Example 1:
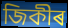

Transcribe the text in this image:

জিকীৰ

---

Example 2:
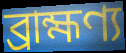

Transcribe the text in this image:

ব্ৰাহ্মণ্য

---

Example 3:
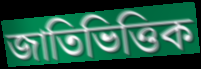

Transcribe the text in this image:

জাতিভিত্তিক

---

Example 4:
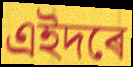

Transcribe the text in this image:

এইদৰে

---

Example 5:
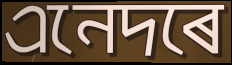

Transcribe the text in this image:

এনেদৰে